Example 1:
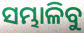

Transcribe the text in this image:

ସମ୍ଭାଳିବୁ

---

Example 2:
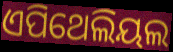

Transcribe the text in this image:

ଏପିଥେଲିୟଲ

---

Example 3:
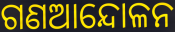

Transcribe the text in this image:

ଗଣଆନ୍ଦୋଳନ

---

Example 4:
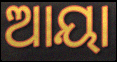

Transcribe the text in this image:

ଆୟା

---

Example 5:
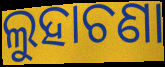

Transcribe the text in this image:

ଲୁହାଚଣା